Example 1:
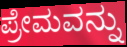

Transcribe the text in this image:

ಪ್ರೇಮವನ್ನು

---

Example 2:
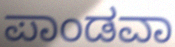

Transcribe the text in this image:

ಪಾಂಡವಾ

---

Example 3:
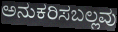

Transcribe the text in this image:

ಅನುಕರಿಸಬಲ್ಲವು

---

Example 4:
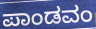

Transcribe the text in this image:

ಪಾಂಡವಂ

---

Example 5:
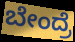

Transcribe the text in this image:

ಬೇಂದ್ರೆ